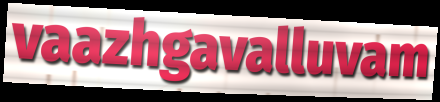
vaazhgavalluvam